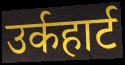
उर्कहार्ट